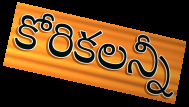
కోరికలన్నీ